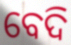
ବେଦି